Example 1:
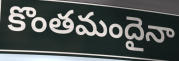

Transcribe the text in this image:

కొంతమందైనా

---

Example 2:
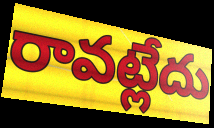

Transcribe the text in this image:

రావట్లేదు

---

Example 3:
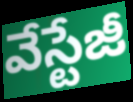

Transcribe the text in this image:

వేస్టేజీ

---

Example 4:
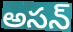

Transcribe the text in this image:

అసన్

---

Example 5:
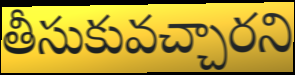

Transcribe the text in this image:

తీసుకువచ్చారని